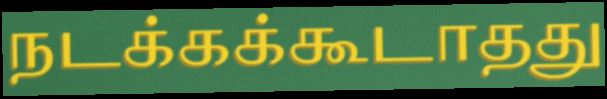
நடக்கக்கூடாதது